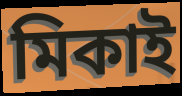
মিকাই